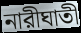
নারীঘাতী